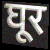
घूर